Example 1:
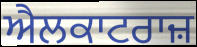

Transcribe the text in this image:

ਐਲਕਾਟਰਾਜ਼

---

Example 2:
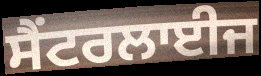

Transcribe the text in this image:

ਸੈਂਟਰਲਾਈਜ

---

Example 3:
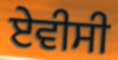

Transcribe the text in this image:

ਏਵੀਸੀ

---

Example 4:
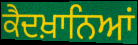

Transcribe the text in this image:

ਕੈਦਖ਼ਾਨਿਆਂ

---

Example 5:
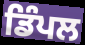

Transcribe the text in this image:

ਡਿੰਪਲ